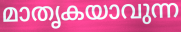
മാതൃകയാവുന്ന